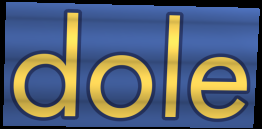
dole